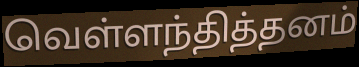
வெள்ளந்தித்தனம்